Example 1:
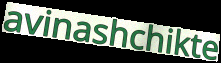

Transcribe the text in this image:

avinashchikte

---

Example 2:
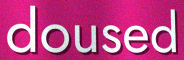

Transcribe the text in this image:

doused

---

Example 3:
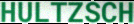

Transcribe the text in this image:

HULTZSCH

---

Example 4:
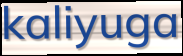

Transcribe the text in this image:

kaliyuga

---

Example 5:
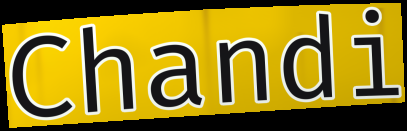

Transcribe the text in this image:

Chandi